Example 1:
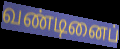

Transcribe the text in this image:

வண்டினைப்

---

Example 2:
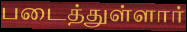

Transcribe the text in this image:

படைத்துள்ளார்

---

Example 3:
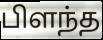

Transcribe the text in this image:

பிளந்த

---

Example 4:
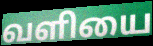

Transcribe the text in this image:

வளியை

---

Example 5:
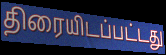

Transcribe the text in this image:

திரையிடப்பட்டது